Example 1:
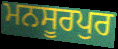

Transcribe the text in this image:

ਮਨਸੂਰਪੁਰ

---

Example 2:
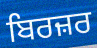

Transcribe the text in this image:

ਬਿਰਜ਼ਰ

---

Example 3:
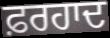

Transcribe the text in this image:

ਫ਼ਰਹਾਦ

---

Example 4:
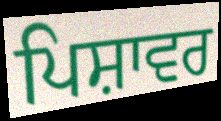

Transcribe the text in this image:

ਪਿਸ਼ਾਵਰ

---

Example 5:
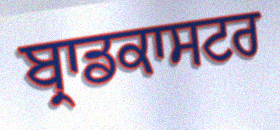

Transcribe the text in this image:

ਬ੍ਰਾਡਕਾਸਟਰ